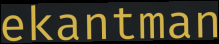
ekantman